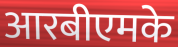
आरबीएमके